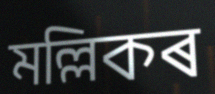
মল্লিকৰ